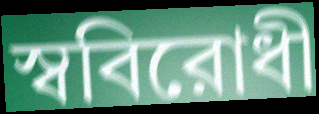
স্ববিরোধী